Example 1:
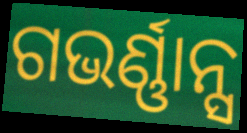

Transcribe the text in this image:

ଗଭର୍ଣ୍ଣାନ୍ସ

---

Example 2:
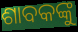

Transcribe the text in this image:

ଶାବକଙ୍କୁ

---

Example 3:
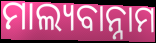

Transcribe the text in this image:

ମାଲ୍ୟବାନ୍ନାମ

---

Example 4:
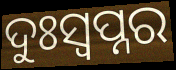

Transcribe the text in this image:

ଦୁଃସ୍ବପ୍ନର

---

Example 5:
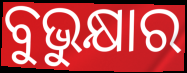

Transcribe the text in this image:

ବୁଭୁକ୍ଷାର